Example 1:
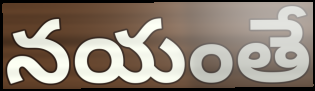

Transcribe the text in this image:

నయంతే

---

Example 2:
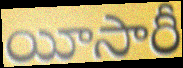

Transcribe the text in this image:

యీసారీ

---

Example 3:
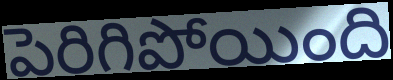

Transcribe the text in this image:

పెరిగిపోయింది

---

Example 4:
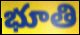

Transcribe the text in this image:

భూతి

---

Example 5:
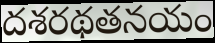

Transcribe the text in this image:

దశరథతనయం